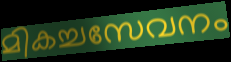
മികച്ചസേവനം